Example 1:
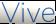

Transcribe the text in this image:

Vive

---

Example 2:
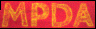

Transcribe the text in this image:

MPDA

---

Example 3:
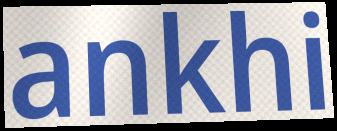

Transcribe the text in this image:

ankhi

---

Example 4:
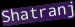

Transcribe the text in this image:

Shatranj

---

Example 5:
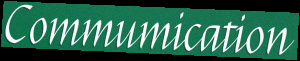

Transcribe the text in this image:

Commumication